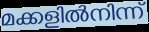
മക്കളിൽനിന്ന്